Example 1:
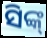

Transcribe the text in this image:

ସିଙ୍କ୍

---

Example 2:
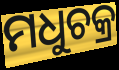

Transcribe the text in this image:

ମଧୁଚକ୍ର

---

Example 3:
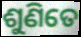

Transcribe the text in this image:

ଶୁଣିତେ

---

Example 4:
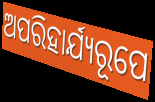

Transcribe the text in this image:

ଅପରିହାର୍ଯ୍ୟରୂପେ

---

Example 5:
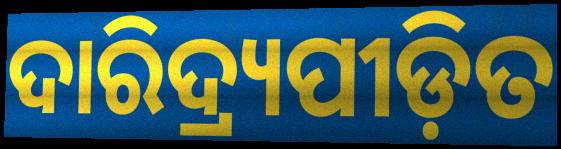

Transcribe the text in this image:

ଦାରିଦ୍ର୍ୟପୀଡ଼ିତ